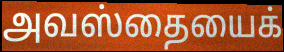
அவஸ்தையைக்